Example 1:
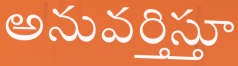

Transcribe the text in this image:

అనువర్తిస్తూ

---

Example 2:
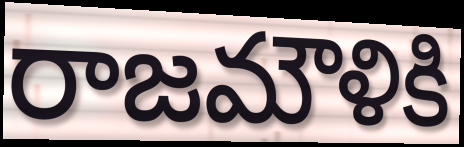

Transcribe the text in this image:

రాజమౌళికి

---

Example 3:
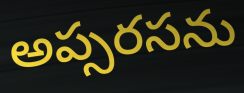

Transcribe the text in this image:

అప్సరసను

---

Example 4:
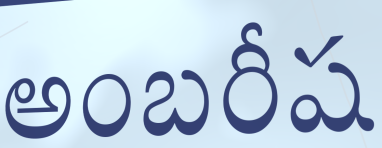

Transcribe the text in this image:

అంబరీష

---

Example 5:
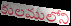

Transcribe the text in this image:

కులములోని